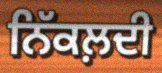
ਨਿੱਕਲ਼ਦੀ